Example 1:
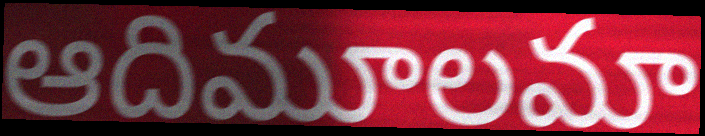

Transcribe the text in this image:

ఆదిమూలమా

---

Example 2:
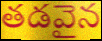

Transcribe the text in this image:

తడవైన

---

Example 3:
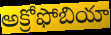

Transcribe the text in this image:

అక్రోఫోబియా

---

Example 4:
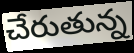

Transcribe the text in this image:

చేరుతున్న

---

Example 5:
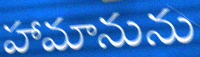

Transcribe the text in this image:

హామానును